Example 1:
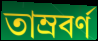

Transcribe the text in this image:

তাম্রবর্ণ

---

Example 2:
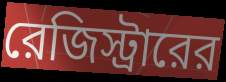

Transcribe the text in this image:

রেজিস্ট্রারের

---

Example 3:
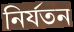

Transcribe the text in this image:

নির্যতন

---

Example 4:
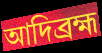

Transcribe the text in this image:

আদিব্রহ্ম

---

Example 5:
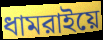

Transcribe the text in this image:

ধামরাইয়ে